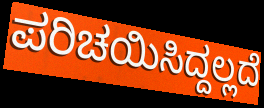
ಪರಿಚಯಿಸಿದ್ದಲ್ಲದೆ